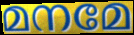
മനമേ